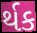
ર્થક